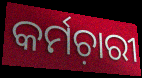
କର୍ମଚ଼ାରୀ